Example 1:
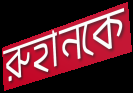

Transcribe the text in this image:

রুহানকে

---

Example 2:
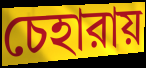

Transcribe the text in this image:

চেহারায়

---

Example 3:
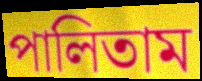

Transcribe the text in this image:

পালিতাম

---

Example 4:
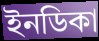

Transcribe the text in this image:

ইনডিকা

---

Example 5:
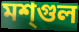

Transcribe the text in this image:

মশ্গুল